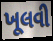
ખૂલવી